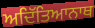
ਅਦਿੱਤਿਆਨਾਥ